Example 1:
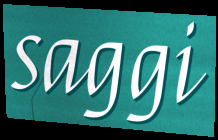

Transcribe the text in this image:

saggi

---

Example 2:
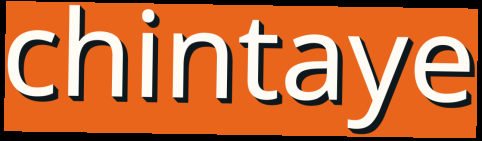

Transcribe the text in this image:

chintaye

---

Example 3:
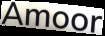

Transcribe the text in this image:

Amoor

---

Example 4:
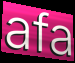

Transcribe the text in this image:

afa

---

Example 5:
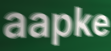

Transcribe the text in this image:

aapke